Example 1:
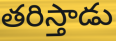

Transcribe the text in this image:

తరిస్తాడు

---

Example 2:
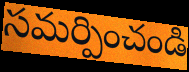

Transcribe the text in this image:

సమర్పించండి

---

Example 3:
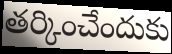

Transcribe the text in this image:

తర్కించేందుకు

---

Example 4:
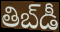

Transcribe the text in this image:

తిబ్‌డీ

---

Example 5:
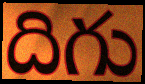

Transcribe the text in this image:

దిగు